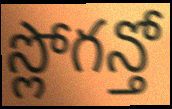
స్లోగన్తో